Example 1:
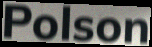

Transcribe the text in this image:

Polson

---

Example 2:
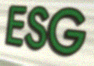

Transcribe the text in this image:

ESG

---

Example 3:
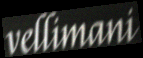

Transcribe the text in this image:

vellimani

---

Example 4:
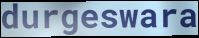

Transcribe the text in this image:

durgeswara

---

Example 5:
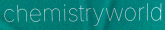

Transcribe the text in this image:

chemistryworld